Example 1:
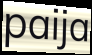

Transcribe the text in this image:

paija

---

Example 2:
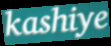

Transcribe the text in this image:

kashiye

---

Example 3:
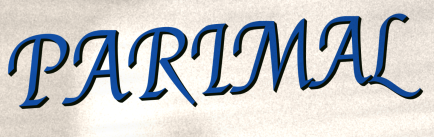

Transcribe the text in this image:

PARIMAL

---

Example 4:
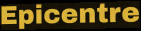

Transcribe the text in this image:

Epicentre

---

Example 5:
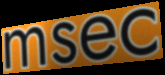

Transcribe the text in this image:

msec